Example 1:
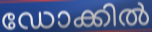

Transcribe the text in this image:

ഡോക്കിൽ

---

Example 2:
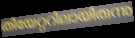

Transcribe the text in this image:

തിയേറ്ററിലായിരുന്നു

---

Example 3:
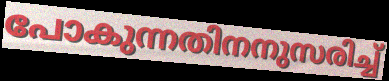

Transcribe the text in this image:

പോകുന്നതിനനുസരിച്ച്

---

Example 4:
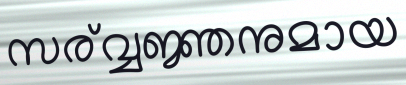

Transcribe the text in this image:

സര്വ്വജ്ഞനുമായ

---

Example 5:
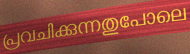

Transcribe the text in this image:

പ്രവചിക്കുന്നതുപോലെ